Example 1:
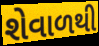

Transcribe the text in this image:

શેવાળથી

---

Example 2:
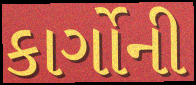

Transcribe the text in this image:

કાર્ગોની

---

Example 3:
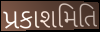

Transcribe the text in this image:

પ્રકાશમિતિ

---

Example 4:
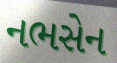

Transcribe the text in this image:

નભસેન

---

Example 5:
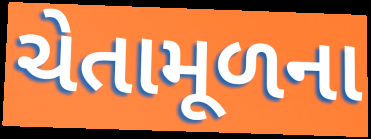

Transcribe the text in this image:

ચેતામૂળના